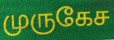
முருகேச